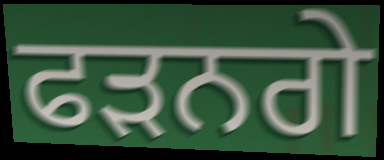
ਫੜਨਗੇ